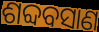
ଶବ୍ଦବସାଣ